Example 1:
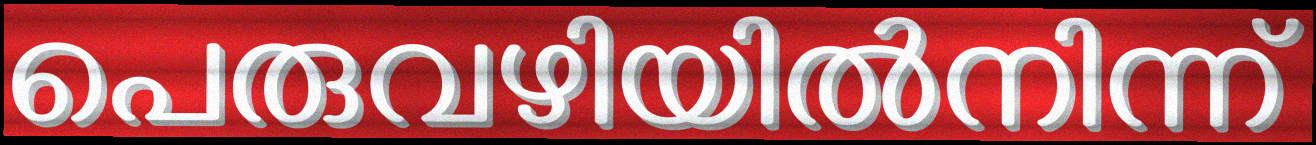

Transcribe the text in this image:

പെരുവഴിയിൽനിന്ന്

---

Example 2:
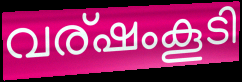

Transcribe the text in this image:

വര്ഷംകൂടി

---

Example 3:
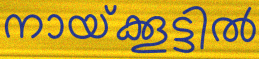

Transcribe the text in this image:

നായ്‌ക്കൂട്ടിൽ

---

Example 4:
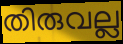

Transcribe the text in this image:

തിരുവല്ല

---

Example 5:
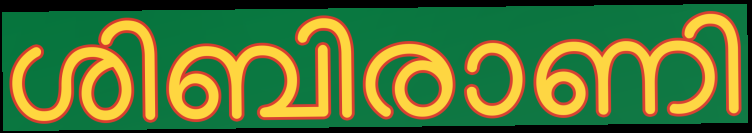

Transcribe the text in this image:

ശിബിരാണി